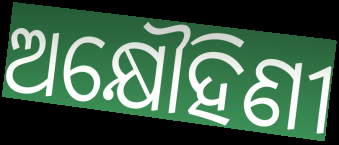
ଅକ୍ଷୌହିଣୀ